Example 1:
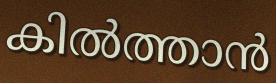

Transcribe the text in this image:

കിൽത്താൻ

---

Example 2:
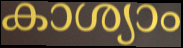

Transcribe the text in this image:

കാശ്യാം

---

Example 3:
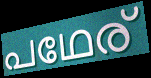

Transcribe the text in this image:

പഥേര്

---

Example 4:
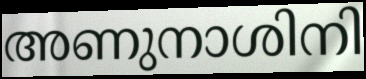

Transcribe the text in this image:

അണുനാശിനി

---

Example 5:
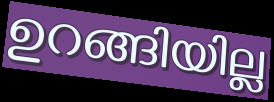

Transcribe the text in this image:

ഉറങ്ങിയില്ല